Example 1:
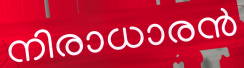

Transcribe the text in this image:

നിരാധാരൻ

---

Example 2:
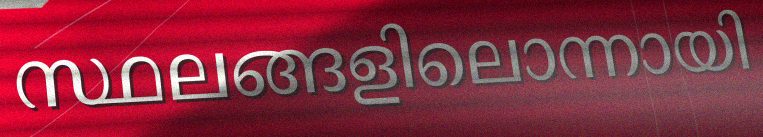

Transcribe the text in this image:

സ്ഥലങ്ങളിലൊന്നായി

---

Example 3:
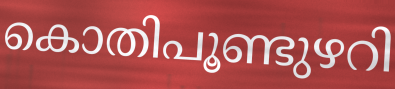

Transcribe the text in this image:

കൊതിപൂണ്ടുഴറി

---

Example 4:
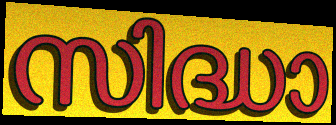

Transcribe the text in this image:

സിദ്ധാ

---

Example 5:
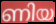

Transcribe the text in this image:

ണിയ